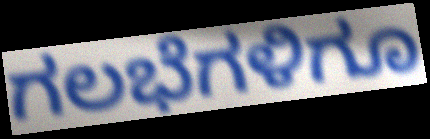
ಗಲಭೆಗಳಿಗೂ